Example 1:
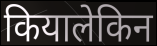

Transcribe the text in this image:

कियालेकिन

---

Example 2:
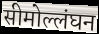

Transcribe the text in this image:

सीमोल्लंघन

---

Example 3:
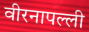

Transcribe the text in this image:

वीरनापल्ली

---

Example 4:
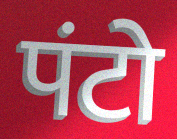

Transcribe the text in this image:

पंटो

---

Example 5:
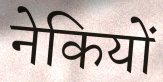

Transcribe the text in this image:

नेकियों